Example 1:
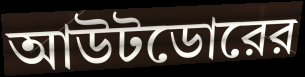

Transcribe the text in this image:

আউটডোরের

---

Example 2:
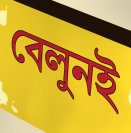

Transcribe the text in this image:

বেলুনই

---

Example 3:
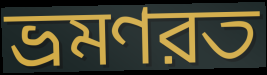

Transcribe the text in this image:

ভ্রমণরত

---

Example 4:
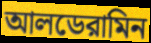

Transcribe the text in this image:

আলডেরামিন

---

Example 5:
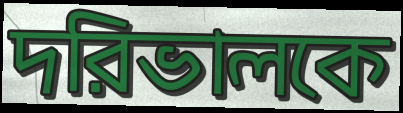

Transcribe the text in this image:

দরিভালকে